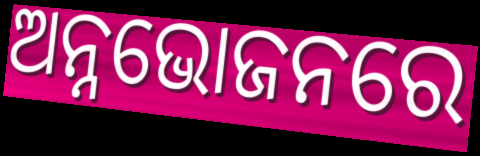
ଅନ୍ନଭୋଜନରେ